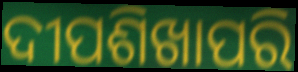
ଦୀପଶିଖାପରି